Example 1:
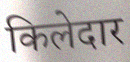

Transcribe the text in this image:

किलेदार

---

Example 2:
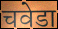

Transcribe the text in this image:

चवेडा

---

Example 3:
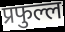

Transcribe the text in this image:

प्रफुल्ल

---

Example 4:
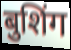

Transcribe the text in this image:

बुशिंग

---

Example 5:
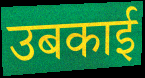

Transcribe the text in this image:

उबकाई